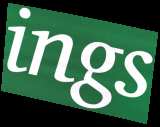
ings